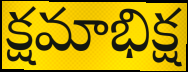
క్షమాభిక్ష